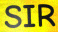
SIR